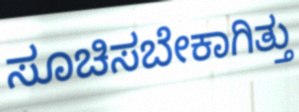
ಸೂಚಿಸಬೇಕಾಗಿತ್ತು